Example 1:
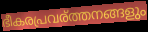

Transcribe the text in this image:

ഭീകരപ്രവര്ത്തനങ്ങളും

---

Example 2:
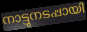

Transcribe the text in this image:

നാട്ടുനടപ്പായി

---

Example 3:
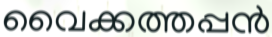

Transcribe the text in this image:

വൈക്കത്തപ്പൻ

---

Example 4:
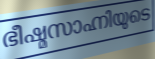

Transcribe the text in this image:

ഭീഷ്മസാഹ്നിയുടെ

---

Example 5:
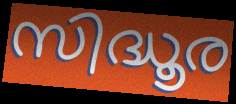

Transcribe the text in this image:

സിദ്ധൂര